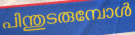
പിന്തുടരുമ്പോൾ